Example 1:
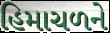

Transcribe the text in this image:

હિમાચળને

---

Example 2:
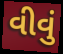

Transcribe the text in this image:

વીવું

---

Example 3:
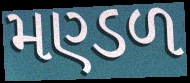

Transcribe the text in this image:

મણ્ડળ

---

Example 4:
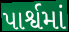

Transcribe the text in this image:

પાર્શ્વમાં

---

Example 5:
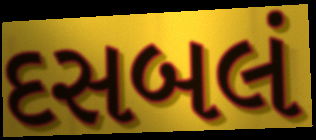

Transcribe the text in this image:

દસબલં